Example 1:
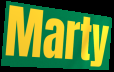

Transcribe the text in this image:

Marty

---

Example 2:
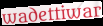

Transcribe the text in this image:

wadettiwar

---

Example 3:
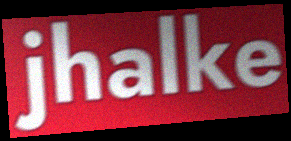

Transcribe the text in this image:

jhalke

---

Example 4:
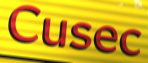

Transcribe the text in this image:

Cusec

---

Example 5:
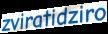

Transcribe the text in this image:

zviratidziro